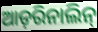
ଆଡ଼ରିନାଲିନ୍